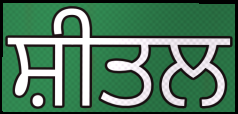
ਸ਼ੀਤਲ